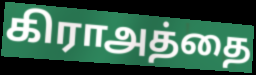
கிராஅத்தை